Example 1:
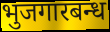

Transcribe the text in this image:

भुजगारबन्ध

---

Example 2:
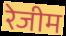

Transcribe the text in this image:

रेजीम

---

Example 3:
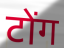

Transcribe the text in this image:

टोंग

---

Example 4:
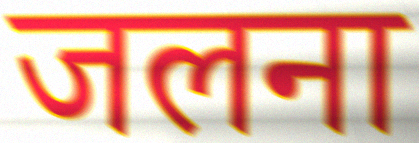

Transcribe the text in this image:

जलना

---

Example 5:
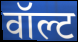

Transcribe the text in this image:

वॉल्ट